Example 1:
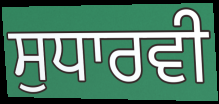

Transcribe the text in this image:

ਸੁਧਾਰਵੀ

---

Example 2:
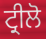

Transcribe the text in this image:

ਟ੍ਰੀਲੋ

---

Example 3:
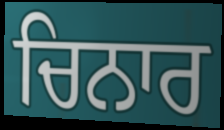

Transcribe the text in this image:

ਚਿਨਾਰ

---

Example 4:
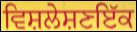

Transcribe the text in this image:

ਵਿਸ਼ਲੇਸ਼ਣਇੱਕ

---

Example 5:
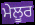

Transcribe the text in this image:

ਮੇਲੂਰ